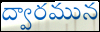
ద్వారమున